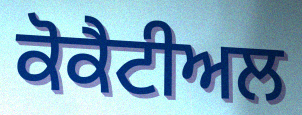
ਕੋਕੈਟੀਅਲ